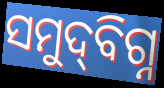
ସମୁଦ୍‌ବିଗ୍ନ